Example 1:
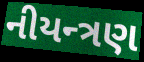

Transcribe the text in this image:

નીયન્ત્રણ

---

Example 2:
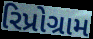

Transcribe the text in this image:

રિપ્રોગ્રામ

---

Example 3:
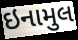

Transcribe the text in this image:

ઇનામુલ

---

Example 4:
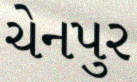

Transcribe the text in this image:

ચેનપુર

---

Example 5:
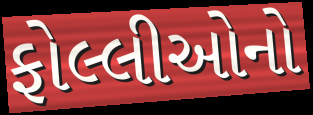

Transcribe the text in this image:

ફોલ્લીઓનો